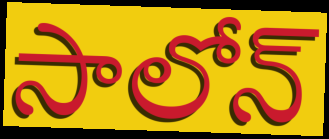
సాలోన్